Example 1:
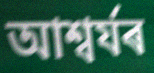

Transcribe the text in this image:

আশ্বৰ্যৰ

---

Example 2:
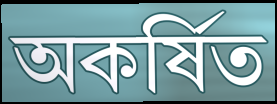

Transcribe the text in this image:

অকৰ্ষিত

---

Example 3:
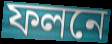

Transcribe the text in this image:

ফলনে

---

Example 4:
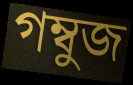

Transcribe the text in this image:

গম্বুজ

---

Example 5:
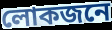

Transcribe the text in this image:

লোকজনে